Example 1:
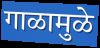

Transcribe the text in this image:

गाळामुळे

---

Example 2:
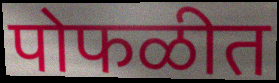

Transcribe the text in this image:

पोफळीत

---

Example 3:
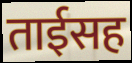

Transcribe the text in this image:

ताईसह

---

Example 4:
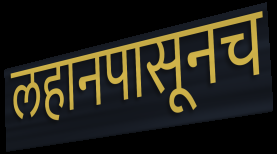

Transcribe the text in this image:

लहानपासूनच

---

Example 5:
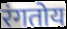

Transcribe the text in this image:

रंगतोय